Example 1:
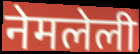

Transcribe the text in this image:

नेमलेली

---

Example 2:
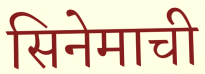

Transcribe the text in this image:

सिनेमाची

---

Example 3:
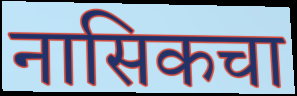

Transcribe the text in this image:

नासिकचा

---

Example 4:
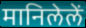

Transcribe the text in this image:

मानिलेलें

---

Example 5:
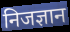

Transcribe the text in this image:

निजज्ञान